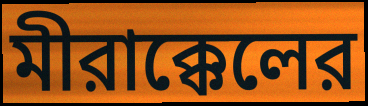
মীরাক্কেলের